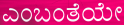
ಎಂಬಂತೆಯೇ